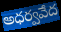
అధర్వవేద